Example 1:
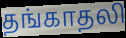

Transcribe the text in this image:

தங்காதலி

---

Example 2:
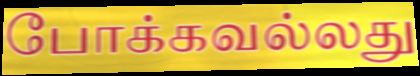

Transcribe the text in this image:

போக்கவல்லது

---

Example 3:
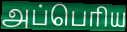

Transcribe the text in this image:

அப்பெரிய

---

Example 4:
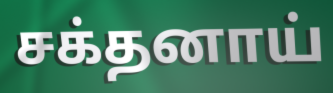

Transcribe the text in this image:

சக்தனாய்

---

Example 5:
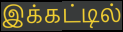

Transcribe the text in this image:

இக்கட்டில்